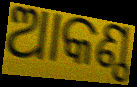
ଆକଣ୍ଠ